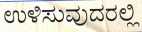
ಉಳಿಸುವುದರಲ್ಲಿ